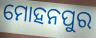
ମୋହନପୁର